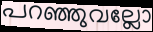
പറഞ്ഞുവല്ലോ